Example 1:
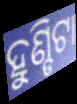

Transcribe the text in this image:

ହୁଣ୍ଡିଟା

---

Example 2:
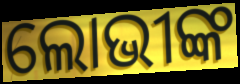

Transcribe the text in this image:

ଲୋଭୀଙ୍କ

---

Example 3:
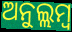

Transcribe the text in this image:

ଅନୁଲ୍ଲମ୍ବ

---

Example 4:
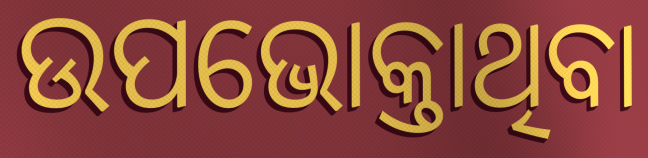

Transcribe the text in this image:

ଉପଭୋକ୍ତାଥିବା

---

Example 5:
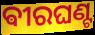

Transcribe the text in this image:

ଵୀରଘଣ୍ଟ